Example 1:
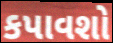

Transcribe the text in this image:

કપાવશો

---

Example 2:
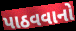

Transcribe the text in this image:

પાઠવવાનો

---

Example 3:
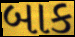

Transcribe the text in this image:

બાક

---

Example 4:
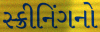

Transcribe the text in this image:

સ્ક્રીનિંગનો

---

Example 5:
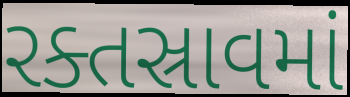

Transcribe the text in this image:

રક્તસ્રાવમાં